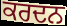
ਕਰਦਨ